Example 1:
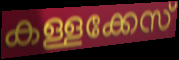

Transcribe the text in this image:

കള്ളക്കേസ്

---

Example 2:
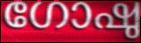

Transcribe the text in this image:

ഗോഷു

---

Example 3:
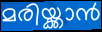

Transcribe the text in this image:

മരിയ്ക്കാൻ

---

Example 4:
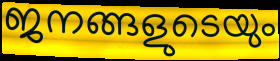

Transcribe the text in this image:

ജനങ്ങളുടെയും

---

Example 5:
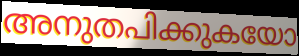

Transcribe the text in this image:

അനുതപിക്കുകയോ